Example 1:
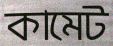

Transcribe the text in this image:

কামেট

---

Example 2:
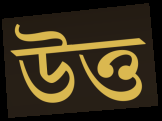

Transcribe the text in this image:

উত্ত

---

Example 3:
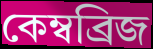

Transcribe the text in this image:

কেম্বব্ৰিজ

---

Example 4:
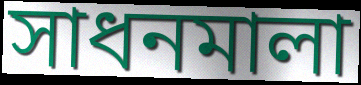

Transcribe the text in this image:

সাধনমালা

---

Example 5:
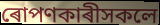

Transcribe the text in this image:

ৰোপণকাৰীসকলে